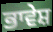
ਭਾਵੇਸ਼